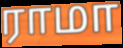
ராமா